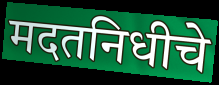
मदतनिधीचे